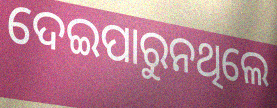
ଦେଇପାରୁନଥିଲେ